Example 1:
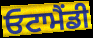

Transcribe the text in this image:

ਓਟਾਮੈਂਡੀ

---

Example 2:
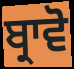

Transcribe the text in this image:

ਬ੍ਰਾਵੋ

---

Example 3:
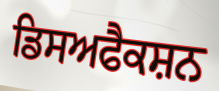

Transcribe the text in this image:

ਡਿਸਅਫੈਕਸ਼ਨ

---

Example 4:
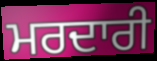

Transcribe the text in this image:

ਮਰਦਾਰੀ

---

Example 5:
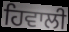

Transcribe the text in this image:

ਹਿਵਾਲੀ